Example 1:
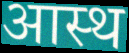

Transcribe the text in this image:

आस्थ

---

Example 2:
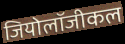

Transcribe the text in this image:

जियोलॉजीकल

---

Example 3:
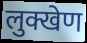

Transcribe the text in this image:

लुक्खेण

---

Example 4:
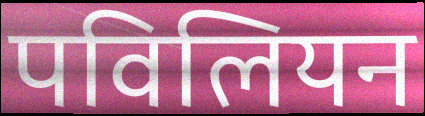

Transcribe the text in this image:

पविलियन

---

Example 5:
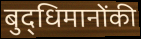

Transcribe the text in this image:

बुद्धिमानोंकी